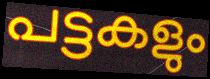
പട്ടകളും